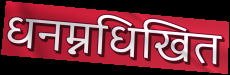
धनम्नधिखित